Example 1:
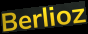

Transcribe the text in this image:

Berlioz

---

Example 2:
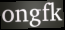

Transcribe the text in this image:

ongfk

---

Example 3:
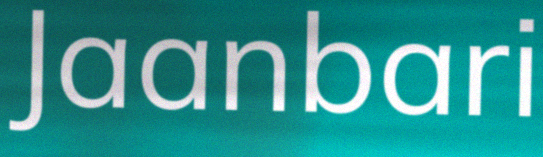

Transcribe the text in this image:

Jaanbari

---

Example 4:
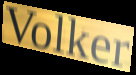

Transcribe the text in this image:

Volker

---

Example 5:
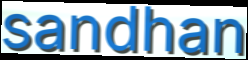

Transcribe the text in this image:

sandhan